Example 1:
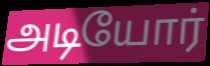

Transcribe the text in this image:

அடியோர்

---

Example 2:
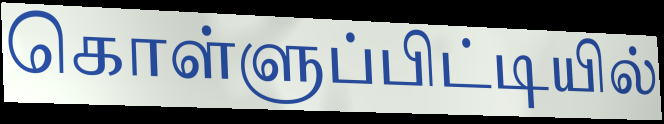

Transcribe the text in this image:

கொள்ளுப்பிட்டியில்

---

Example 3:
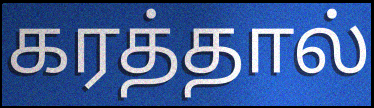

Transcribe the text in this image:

கரத்தால்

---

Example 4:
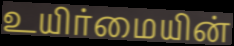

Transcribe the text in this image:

உயிர்மையின்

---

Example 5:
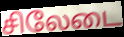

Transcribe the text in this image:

சிலேடை